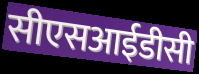
सीएसआईडीसी